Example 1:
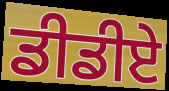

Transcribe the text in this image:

ਡੀਡੀਏ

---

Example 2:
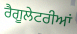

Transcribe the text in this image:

ਰੈਗੂਲੇਟਰੀਆਂ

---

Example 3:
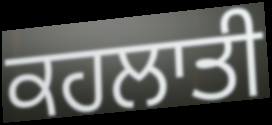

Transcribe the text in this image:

ਕਹਲਾਤੀ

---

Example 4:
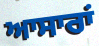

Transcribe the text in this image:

ਆਸਾਰਾਂ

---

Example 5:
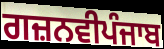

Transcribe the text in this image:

ਗਜ਼ਨਵੀਪੰਜਾਬ